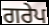
ਗਰੇਪ